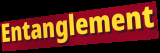
Entanglement